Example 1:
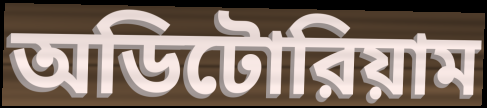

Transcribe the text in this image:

অডিটোরিয়াম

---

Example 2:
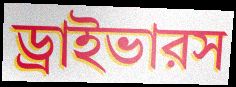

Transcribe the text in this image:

ড্রাইভারস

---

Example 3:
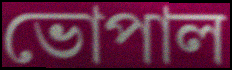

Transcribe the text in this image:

ভোপাল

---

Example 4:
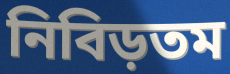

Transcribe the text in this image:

নিবিড়তম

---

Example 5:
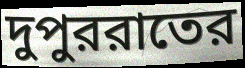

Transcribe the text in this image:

দুপুররাতের